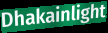
Dhakainlight